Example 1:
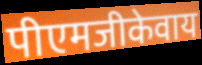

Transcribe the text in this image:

पीएमजीकेवाय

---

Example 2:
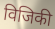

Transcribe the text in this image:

विजिकी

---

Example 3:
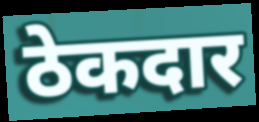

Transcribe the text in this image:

ठेकदार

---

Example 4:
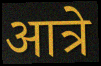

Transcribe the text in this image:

आत्रे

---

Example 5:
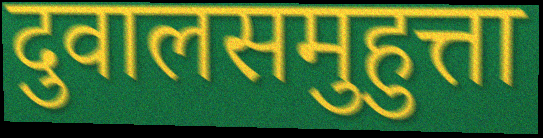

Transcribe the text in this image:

दुवालसमुहुत्ता